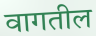
वागतील